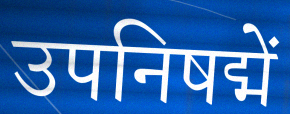
उपनिषद्में